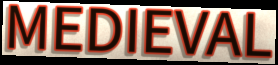
MEDIEVAL